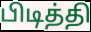
பிடித்தி